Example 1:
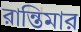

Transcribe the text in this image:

রান্তিমার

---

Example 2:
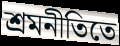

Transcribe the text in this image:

শ্রমনীতিতে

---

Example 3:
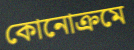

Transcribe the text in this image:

কোনোক্রমে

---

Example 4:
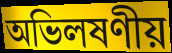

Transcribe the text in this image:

অভিলষণীয়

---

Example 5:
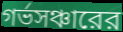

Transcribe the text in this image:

গর্ভসঞ্চারের